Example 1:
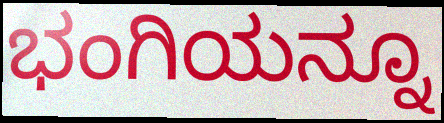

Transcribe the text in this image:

ಭಂಗಿಯನ್ನೂ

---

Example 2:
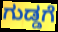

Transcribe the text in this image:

ಗುಡ್ಡಗೆ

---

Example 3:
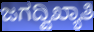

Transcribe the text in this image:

ಜಗದ್ವಿಖ್ಯಾತಿ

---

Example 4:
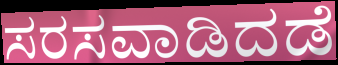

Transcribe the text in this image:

ಸರಸವಾಡಿದಡೆ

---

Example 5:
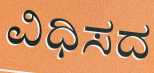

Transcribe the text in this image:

ವಿಧಿಸದ